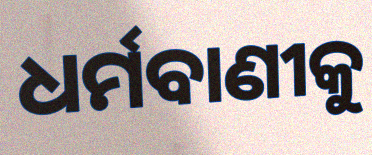
ଧର୍ମବାଣୀକୁ